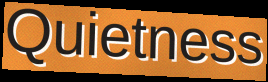
Quietness